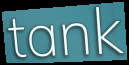
tank